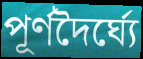
পূর্ণদৈর্ঘ্যে